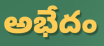
అభేదం